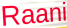
Raani